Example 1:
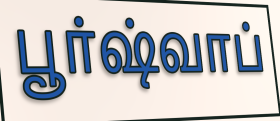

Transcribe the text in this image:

பூர்ஷ்வாப்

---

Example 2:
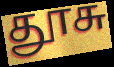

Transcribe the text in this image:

தூசு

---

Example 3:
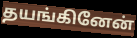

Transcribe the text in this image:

தயங்கினேன்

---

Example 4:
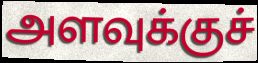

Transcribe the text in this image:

அளவுக்குச்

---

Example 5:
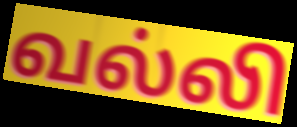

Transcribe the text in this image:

வல்லி